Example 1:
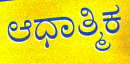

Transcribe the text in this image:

ಆಧಾತ್ಮಿಕ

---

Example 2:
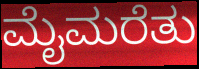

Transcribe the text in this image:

ಮೈಮರೆತು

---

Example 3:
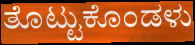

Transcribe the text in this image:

ತೊಟ್ಟುಕೊಂಡಳು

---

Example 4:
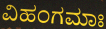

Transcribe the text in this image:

ವಿಹಂಗಮಾಃ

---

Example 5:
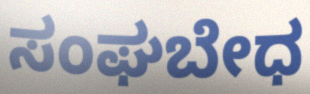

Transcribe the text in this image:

ಸಂಘಬೇಧ